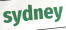
sydney